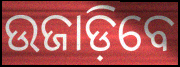
ଉଜାଡ଼ିବେ